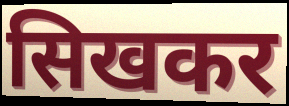
सिखकर